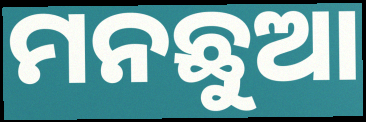
ମନଛୁଆ